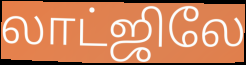
லாட்ஜிலே